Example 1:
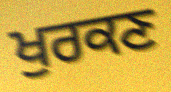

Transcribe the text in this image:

ਖੁਰਕਣ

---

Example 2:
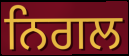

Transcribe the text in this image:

ਨਿਗਲ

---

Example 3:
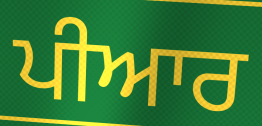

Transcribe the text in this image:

ਪੀਆਰ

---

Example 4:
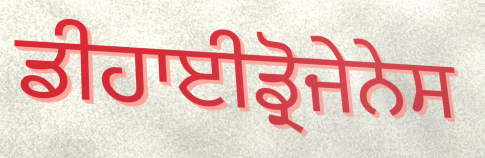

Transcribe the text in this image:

ਡੀਹਾਈਡ੍ਰੋਜੇਨੇਸ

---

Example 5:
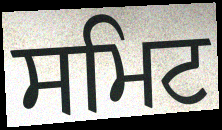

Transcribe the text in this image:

ਸਮਿਟ